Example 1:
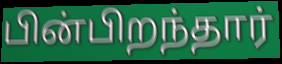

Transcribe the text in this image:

பின்பிறந்தார்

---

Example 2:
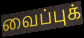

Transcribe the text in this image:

வைப்புக்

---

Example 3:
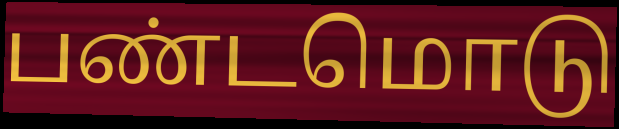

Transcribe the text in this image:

பண்டமொடு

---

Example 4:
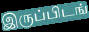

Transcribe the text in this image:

இருப்பிடங்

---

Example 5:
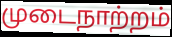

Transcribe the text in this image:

முடைநாற்றம்